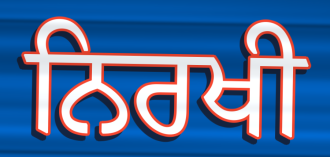
ਨਿਰਖੀ